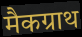
मैकग्राथ